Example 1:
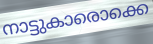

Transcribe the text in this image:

നാട്ടുകാരൊക്കെ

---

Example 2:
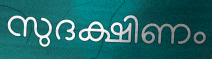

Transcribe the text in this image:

സുദക്ഷിണം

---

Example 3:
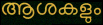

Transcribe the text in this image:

ആശകളും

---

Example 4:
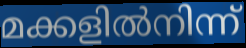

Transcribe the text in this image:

മക്കളിൽനിന്ന്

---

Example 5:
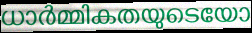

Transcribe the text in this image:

ധാർമ്മികതയുടെയോ